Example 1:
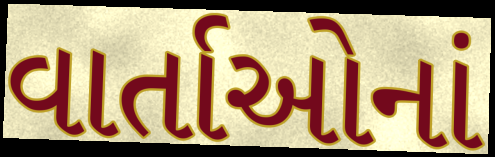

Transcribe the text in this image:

વાર્તાઓનાં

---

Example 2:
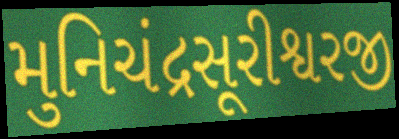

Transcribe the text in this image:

મુનિચંદ્રસૂરીશ્વરજી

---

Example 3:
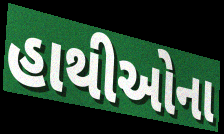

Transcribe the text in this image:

હાથીઓના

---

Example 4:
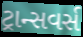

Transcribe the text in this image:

ટ્રાન્સવર્સ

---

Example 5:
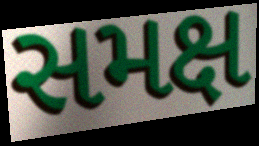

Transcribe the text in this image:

સમક્ષ